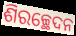
ଶିରଚ୍ଛେଦନ